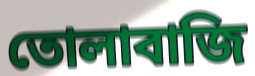
তোলাবাজি